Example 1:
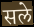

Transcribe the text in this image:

सले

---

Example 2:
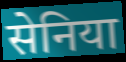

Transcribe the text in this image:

सेनिया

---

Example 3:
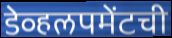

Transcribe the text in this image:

डेव्हलपमेंटची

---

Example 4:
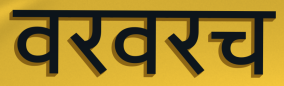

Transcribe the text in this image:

वरवरच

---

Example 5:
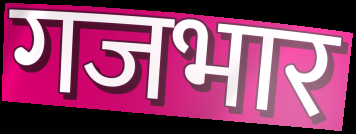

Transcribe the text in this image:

गजभार